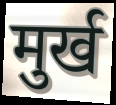
मुर्ख